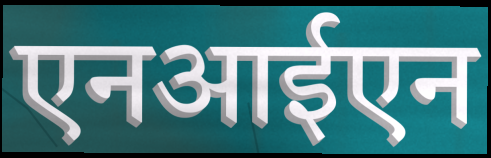
एनआईएन